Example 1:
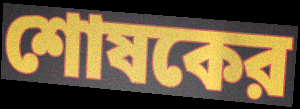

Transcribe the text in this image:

শোষকের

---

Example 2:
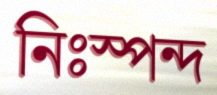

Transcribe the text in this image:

নিঃস্পন্দ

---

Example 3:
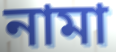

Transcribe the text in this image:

নামা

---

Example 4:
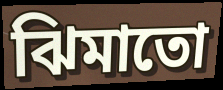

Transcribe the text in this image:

ঝিমাতো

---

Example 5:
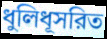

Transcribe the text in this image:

ধুলিধূসরিত